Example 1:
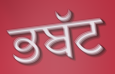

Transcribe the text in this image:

ਭਬੱਟ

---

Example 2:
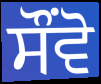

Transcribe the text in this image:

ਸੌਂਵੋ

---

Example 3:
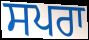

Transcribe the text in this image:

ਸਪਰਾ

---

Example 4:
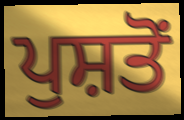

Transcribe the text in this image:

ਪੁਸ਼ਤੋਂ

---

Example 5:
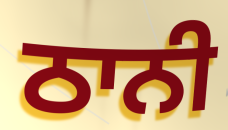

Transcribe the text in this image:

ਠਾਨੀ